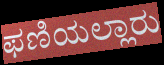
ಫಣಿಯಲ್ಲಾರು